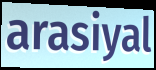
arasiyal